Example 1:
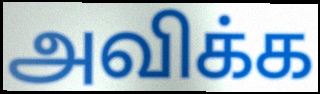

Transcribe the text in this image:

அவிக்க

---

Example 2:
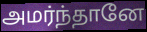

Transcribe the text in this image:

அமர்ந்தானே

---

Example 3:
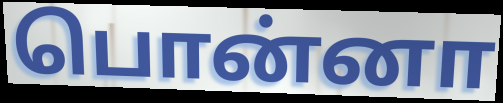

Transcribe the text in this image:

பொன்னா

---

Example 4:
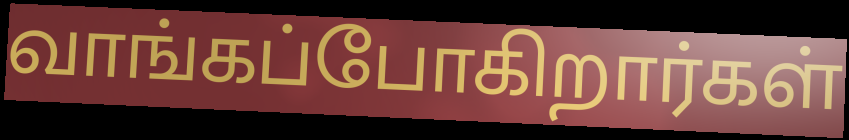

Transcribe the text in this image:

வாங்கப்போகிறார்கள்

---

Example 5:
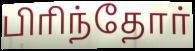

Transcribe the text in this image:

பிரிந்தோர்